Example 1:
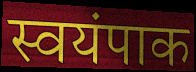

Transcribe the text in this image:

स्वयंपाक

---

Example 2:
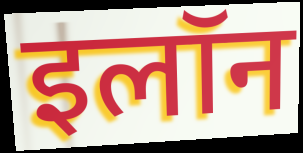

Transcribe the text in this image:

इलॉन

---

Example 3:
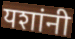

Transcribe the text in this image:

यशांनी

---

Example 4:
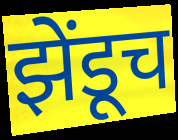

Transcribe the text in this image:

झेंडूच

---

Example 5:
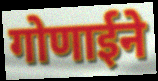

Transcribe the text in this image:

गोणाईने